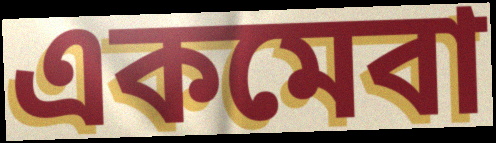
একমেবা